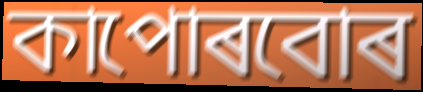
কাপোৰবোৰ